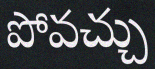
పోవచ్చు